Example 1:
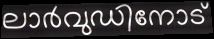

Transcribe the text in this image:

ലാർവുഡിനോട്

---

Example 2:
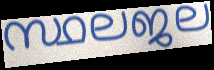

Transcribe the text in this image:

സ്ഥലജല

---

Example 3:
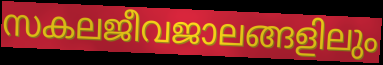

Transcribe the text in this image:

സകലജീവജാലങ്ങളിലും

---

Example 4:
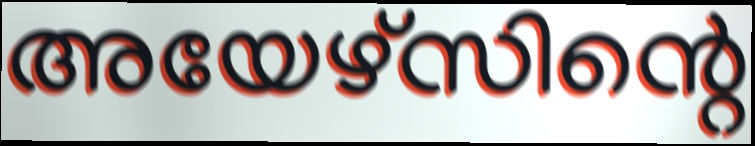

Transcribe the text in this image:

അയേഴ്സിന്റെ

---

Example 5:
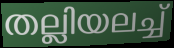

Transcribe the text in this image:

തല്ലിയലച്ച്